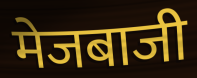
मेजबाजी